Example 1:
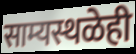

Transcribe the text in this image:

साम्यस्थळेही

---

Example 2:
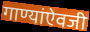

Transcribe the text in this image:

गाण्यांऐवजी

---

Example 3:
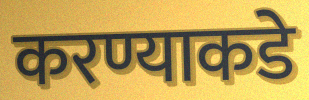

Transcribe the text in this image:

करण्याकडे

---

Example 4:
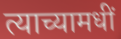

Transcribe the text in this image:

त्याच्यामधीं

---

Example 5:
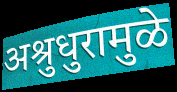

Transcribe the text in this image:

अश्रुधुरामुळे